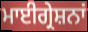
ਮਾਈਗ੍ਰੇਸ਼ਨਾਂ